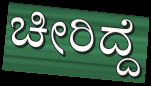
ಚೀರಿದ್ದೆ